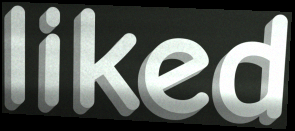
liked